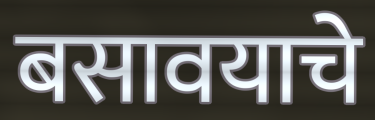
बसावयाचे